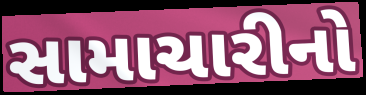
સામાચારીનો